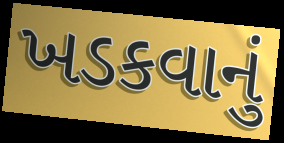
ખડકવાનું